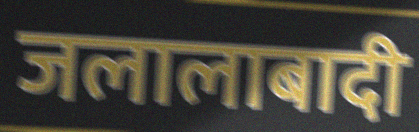
जलालाबादी